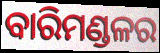
ବାରିମଣ୍ଡଳର